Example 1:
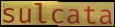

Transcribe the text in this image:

sulcata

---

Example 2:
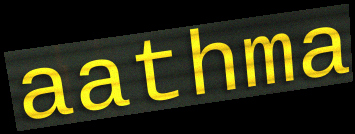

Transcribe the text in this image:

aathma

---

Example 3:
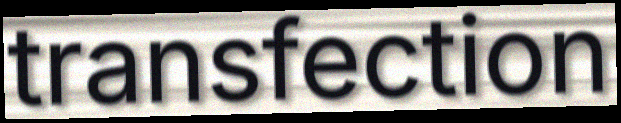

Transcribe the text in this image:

transfection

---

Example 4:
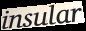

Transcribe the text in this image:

insular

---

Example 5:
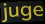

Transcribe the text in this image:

juge